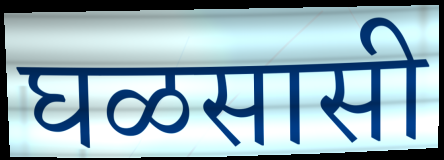
घळसासी